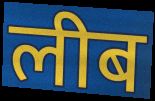
लीब